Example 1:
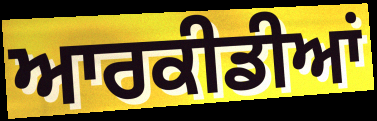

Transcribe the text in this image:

ਆਰਕੀਡੀਆਂ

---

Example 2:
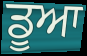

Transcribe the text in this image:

ਡੂਆ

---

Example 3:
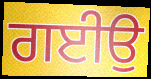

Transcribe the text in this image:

ਗਈਉ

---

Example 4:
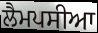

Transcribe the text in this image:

ਲੈਮਪਸੀਆ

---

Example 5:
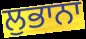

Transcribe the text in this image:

ਲੁਭਾਨਾ